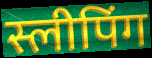
स्लीपिंग